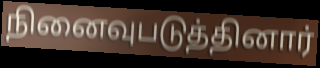
நினைவுபடுத்தினார்